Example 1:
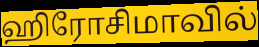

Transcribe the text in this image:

ஹிரோசிமாவில்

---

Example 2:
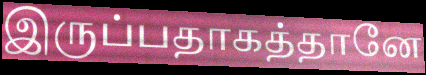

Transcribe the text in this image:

இருப்பதாகத்தானே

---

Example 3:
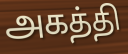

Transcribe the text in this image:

அகத்தி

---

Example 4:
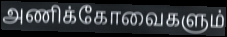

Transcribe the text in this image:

அணிக்கோவைகளும்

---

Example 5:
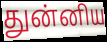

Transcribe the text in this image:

துன்னிய